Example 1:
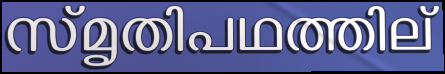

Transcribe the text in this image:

സ്മൃതിപഥത്തില്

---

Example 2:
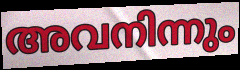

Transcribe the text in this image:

അവനിന്നും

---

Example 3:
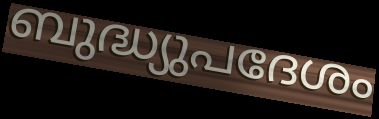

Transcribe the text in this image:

ബുദ്ധ്യുപദേശം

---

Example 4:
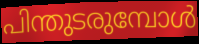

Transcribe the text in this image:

പിന്തുടരുമ്പോൾ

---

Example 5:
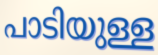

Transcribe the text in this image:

പാടിയുള്ള